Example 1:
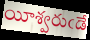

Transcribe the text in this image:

యీశ్వరుఁడే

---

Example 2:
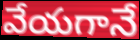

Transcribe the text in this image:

వేయగానే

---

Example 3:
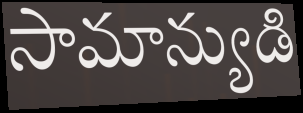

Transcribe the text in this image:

సామాన్యుడి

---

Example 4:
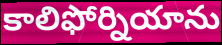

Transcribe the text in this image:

కాలిఫోర్నియాను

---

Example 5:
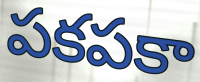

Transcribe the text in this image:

పకపకా